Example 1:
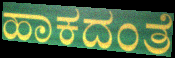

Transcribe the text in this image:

ಹಾಕದಂತೆ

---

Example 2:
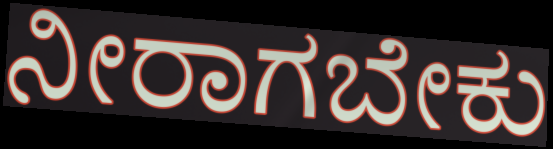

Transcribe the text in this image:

ನೀರಾಗಬೇಕು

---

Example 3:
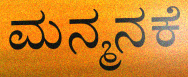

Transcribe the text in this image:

ಮನ್ಮನಕೆ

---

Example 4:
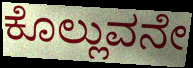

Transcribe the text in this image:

ಕೊಲ್ಲುವನೇ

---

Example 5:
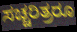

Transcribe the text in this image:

ಸಚ್ಚರಿತ್ರರೂ